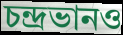
চন্দ্রভানও